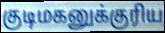
குடிமகனுக்குரிய